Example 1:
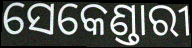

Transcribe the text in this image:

ସେକେଣ୍ଡାରୀ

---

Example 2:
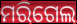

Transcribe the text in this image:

ମରିଗେଲ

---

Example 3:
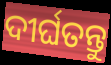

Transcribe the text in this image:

ଦୀର୍ଘତନ୍ତୁ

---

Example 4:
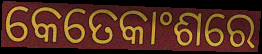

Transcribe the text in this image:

କେତେକାଂଶରେ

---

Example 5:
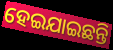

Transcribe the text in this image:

ହେଇଯାଇଛନ୍ତି